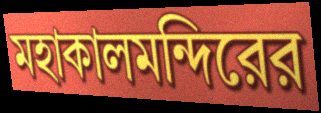
মহাকালমন্দিরের